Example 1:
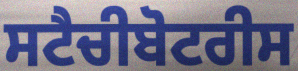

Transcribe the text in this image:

ਸਟੈਚੀਬੋਟਰੀਸ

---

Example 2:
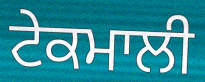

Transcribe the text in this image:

ਟੇਕਮਾਲੀ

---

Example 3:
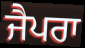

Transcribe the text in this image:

ਜੈਪਰਾ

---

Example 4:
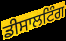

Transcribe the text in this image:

ਡੀਸਾਲਟਿੰਗ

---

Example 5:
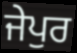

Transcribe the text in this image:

ਜੇਪੁਰ